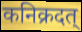
कनिक्रदत्